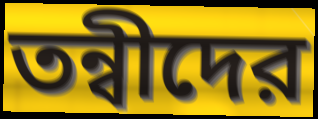
তন্বীদের